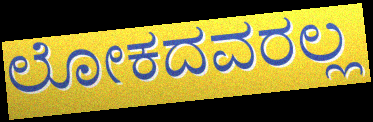
ಲೋಕದವರಲ್ಲ